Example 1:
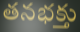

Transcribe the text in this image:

తనభక్తు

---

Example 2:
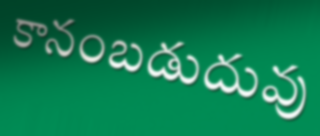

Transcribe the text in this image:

కానంబడుదువు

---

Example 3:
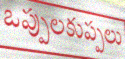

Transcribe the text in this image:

ఒప్పులకుప్పలు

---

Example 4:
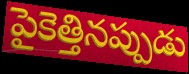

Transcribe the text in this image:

పైకెత్తినప్పుడు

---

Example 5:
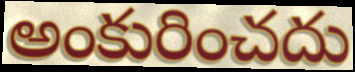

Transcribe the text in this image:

అంకురించదు